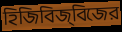
হিজিবিজ্‌বিজের